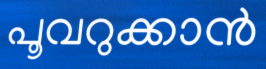
പൂവറുക്കാൻ